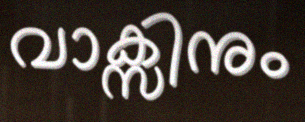
വാക്സിനും